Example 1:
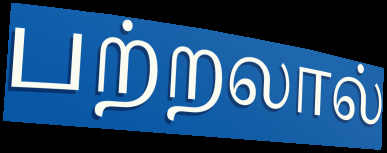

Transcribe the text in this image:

பற்றலால்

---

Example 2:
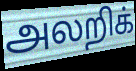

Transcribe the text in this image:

அலறிக்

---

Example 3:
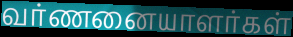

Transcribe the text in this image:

வர்ணனையாளர்கள்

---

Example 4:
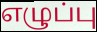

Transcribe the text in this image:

எழுப்பு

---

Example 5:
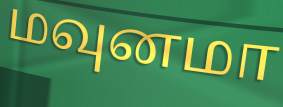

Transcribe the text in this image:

மவுனமா